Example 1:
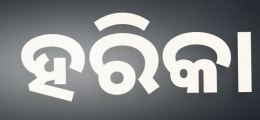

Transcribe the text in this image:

ହରିକା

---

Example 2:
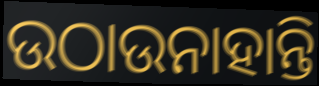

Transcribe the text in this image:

ଉଠାଉନାହାନ୍ତି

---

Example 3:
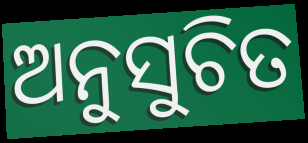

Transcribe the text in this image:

ଅନୁସୁଚିତ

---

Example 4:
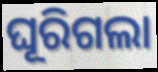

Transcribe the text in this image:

ଘୂରିଗଲା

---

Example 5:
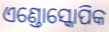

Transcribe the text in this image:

ଏଣ୍ଡୋସ୍କୋପିକ